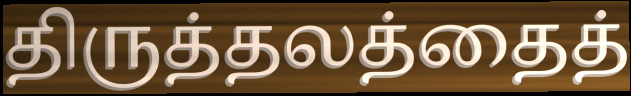
திருத்தலத்தைத்